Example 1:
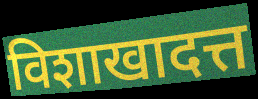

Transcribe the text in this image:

विशाखादत्त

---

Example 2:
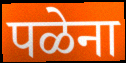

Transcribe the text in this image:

पळेना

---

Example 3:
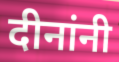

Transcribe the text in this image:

दीनांनी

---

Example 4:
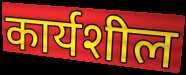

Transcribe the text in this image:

कार्यशील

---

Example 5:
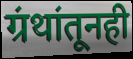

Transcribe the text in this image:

ग्रंथांतूनही